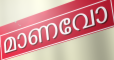
മാണവോ